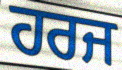
ਹਰਜ